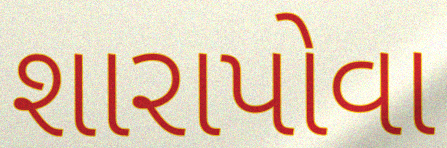
શારાપોવા